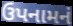
ઉપનામનં